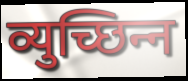
व्युच्छिन्न